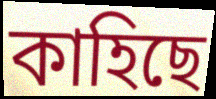
কাহিছে